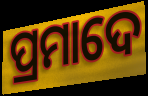
ପ୍ରମାଦେ